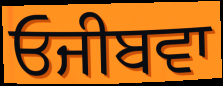
ਓਜੀਬਵਾ